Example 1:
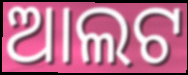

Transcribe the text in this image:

ଆଲଟ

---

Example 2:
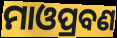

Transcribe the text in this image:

ମାଓପ୍ରବଣ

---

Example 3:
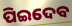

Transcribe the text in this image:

ପିଇଦେବ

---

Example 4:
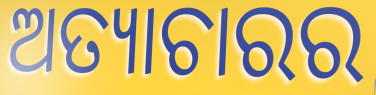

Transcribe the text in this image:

ଅତ୍ୟାଚାରର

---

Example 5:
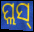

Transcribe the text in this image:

ପ୍ଲସ୍